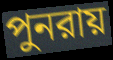
পুনরায়